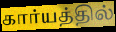
கார்யத்தில்